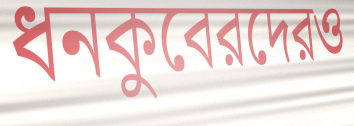
ধনকুবেরদেরও